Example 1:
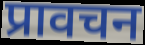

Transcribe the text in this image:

प्रावचन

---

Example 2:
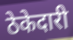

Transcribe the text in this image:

ठेकेदारी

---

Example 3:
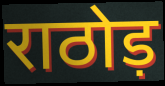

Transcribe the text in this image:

राठोड़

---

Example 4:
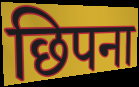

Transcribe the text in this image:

छिपना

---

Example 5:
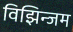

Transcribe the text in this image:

विझिन्जम